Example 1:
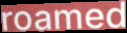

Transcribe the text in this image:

roamed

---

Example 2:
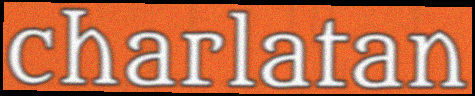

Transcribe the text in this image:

charlatan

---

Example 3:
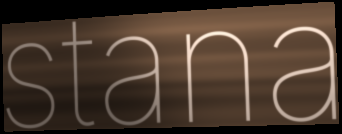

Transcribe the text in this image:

stana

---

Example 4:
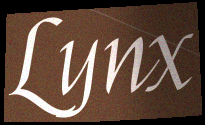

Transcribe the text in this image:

Lynx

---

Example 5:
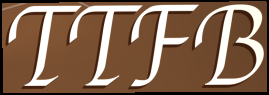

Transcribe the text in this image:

TTFB